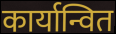
कार्यान्वित